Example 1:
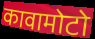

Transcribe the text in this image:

कावामोटो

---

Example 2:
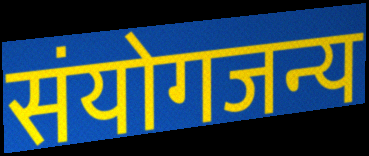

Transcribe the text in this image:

संयोगजन्य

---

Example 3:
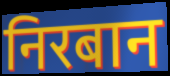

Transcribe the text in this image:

निरबान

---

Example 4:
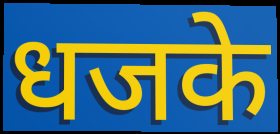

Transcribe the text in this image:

धजके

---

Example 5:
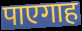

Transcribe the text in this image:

पाएगाह